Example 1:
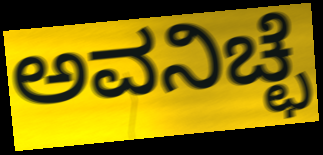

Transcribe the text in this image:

ಅವನಿಚ್ಛೆ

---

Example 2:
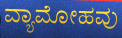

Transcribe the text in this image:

ವ್ಯಾಮೋಹವು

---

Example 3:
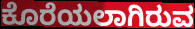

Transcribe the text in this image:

ಕೊರೆಯಲಾಗಿರುವ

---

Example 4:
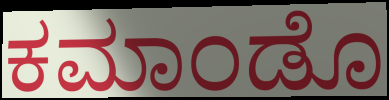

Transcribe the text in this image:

ಕಮಾಂಡೊ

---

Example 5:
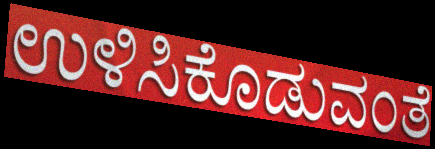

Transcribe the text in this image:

ಉಳಿಸಿಕೊಡುವಂತೆ